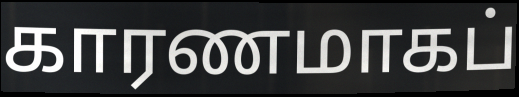
காரணமாகப்